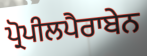
ਪ੍ਰੋਪੀਲਪੈਰਾਬੇਨ